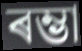
ৰম্ভা